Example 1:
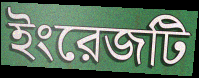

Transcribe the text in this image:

ইংরেজটি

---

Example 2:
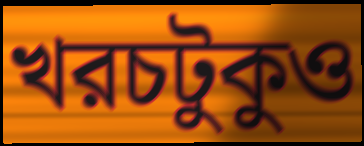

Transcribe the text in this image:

খরচটুকুও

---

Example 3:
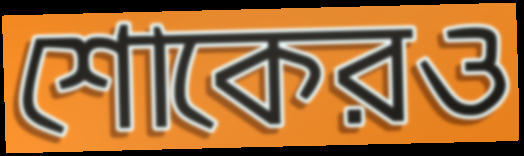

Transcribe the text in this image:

শোকেরও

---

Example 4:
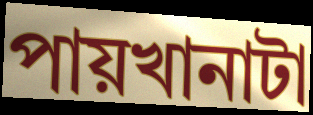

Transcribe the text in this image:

পায়খানাটা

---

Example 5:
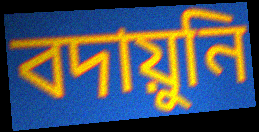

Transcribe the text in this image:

বদায়ুনি